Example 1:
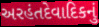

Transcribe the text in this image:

અરહંતદેવાદિકનું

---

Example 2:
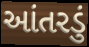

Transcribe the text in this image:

આંતરડું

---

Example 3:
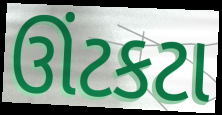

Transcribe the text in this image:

ઊંટકટા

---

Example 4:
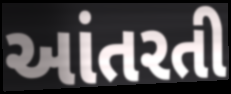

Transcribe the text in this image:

આંતરતી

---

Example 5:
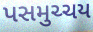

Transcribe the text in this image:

પસમુચ્ચય